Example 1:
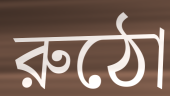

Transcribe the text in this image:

রুঠো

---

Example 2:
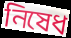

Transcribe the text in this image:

নিষেধ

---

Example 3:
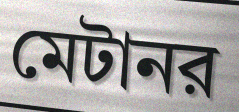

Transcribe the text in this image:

মেটানর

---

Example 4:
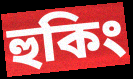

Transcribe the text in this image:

হুকিং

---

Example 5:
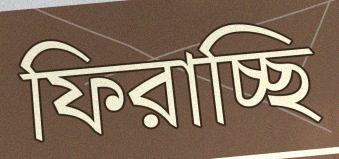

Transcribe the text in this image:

ফিরাচ্ছি